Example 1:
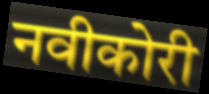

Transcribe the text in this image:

नवीकोरी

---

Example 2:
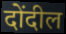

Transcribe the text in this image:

दोंदील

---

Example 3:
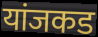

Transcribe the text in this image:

यांजकड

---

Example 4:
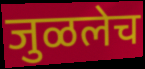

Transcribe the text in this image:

जुळलेच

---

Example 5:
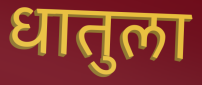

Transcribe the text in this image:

धातुला